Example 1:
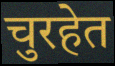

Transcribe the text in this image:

चुरहेत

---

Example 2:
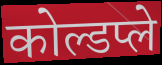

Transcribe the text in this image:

कोल्डप्ले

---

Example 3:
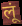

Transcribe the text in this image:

लूं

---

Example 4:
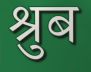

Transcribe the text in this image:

श्रुब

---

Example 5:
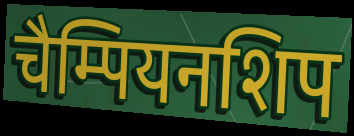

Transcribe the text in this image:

चैम्पियनशिप